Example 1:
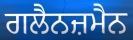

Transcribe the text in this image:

ਗਲੈਨਜ਼ਮੈਨ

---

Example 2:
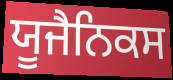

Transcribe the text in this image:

ਯੂਜੈਨਿਕਸ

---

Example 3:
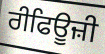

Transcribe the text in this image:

ਰੀਫਿਊਜ਼ੀ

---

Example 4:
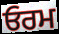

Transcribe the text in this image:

ਓਰਮ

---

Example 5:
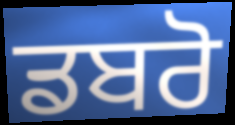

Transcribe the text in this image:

ਡਬਰੋ